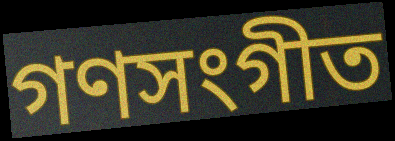
গণসংগীত